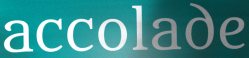
accolade